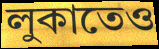
লুকাতেও